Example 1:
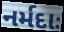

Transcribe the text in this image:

નર્મદાઃ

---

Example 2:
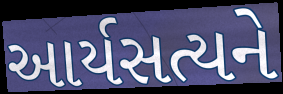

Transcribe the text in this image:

આર્યસત્યને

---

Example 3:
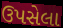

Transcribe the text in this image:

ઉપસેલા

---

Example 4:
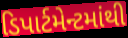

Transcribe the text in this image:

ડિપાર્ટમેન્ટમાંથી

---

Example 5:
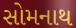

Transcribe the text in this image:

સોમનાથ